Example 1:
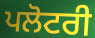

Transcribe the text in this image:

ਪਲੋਟਰੀ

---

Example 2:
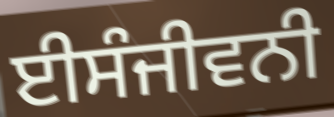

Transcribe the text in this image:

ਈਸੰਜੀਵਨੀ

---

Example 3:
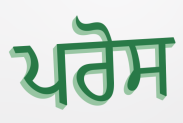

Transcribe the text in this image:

ਪਰੋਸ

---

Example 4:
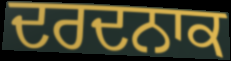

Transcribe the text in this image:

ਦਰਦਨਾਕ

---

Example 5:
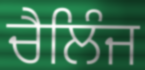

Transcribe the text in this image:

ਚੈਲਿੰਜ